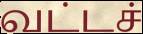
வட்டச்